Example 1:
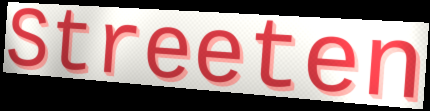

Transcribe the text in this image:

Streeten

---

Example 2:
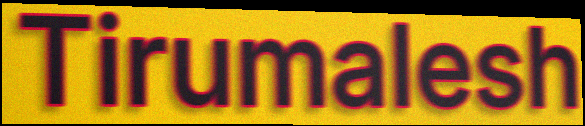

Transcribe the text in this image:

Tirumalesh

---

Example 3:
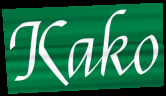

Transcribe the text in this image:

Kako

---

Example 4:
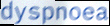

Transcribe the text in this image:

dyspnoea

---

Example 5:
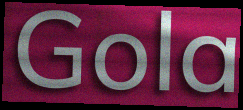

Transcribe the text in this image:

Gola